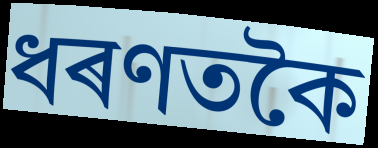
ধৰণতকৈ